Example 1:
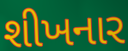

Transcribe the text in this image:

શીખનાર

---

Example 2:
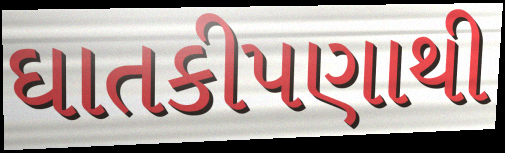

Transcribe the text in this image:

ઘાતકીપણાથી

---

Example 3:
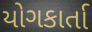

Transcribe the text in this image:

યોગકાર્તા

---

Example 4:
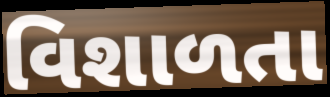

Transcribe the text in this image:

વિશાળતા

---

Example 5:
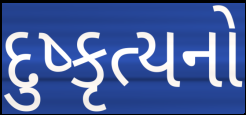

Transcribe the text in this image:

દુષ્કૃત્યનો